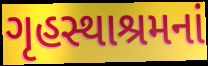
ગૃહસ્થાશ્રમનાં